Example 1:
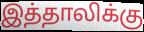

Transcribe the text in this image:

இத்தாலிக்கு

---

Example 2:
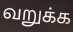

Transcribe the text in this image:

வறுக்க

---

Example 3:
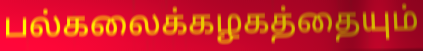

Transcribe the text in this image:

பல்கலைக்கழகத்தையும்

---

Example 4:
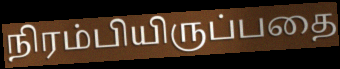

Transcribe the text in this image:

நிரம்பியிருப்பதை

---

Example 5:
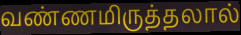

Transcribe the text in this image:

வண்ணமிருத்தலால்